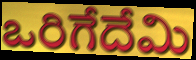
ఒరిగేదేమి